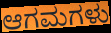
ಆಗಮಗಳು